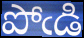
పోఁడి